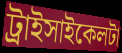
ট্রাইসাইকেলটা